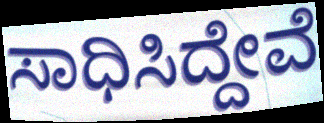
ಸಾಧಿಸಿದ್ದೇವೆ